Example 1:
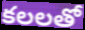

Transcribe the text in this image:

కలలతో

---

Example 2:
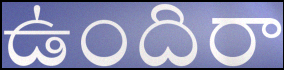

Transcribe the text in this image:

ఉందిరా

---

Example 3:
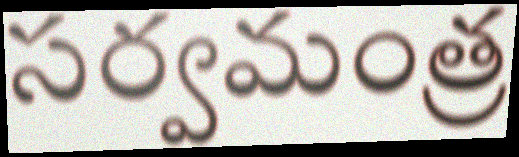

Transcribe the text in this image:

సర్వమంత్ర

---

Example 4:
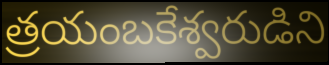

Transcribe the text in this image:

త్రయంబకేశ్వరుడిని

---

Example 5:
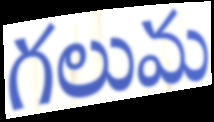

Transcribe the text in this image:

గలుమ